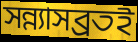
সন্ন্যাসব্রতই